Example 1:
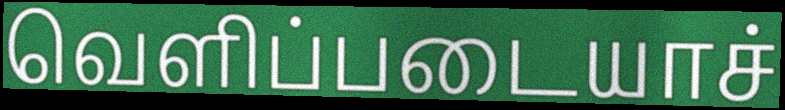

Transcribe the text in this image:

வெளிப்படையாச்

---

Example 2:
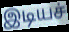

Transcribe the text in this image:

இடியச்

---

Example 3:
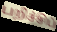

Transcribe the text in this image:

பறிச்சிப்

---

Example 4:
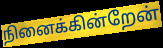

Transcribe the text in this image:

நினைக்கின்றேன்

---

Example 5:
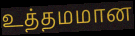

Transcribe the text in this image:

உத்தமமான